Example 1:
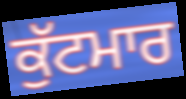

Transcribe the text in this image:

ਕੁੱਟਮਾਰ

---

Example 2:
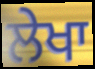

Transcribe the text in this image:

ਲੇਖਾ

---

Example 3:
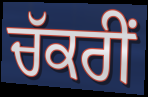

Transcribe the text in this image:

ਚੱਕਰੀਂ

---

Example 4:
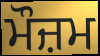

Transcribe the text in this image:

ਮੌਜ਼ਮ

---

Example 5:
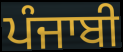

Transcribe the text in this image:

ਪੰਜਾਬੀ